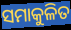
ସମାକୁଳିତ